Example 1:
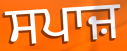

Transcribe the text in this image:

ਸਪਾਜ਼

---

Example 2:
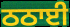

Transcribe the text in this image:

ਠਠਾਈ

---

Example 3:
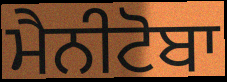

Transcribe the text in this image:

ਮੈਨੀਟੋਬਾ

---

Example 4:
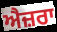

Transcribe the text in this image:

ਐਜ਼ਰਾ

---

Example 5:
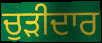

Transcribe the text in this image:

ਚੁੜੀਦਾਰ